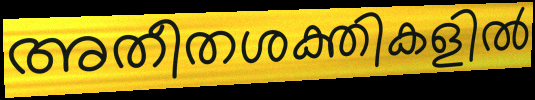
അതീതശക്തികളിൽ